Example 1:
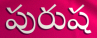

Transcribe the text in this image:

పురుష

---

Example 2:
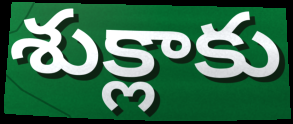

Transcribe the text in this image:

శుక్లాకు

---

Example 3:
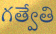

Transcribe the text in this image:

గత్వేతి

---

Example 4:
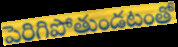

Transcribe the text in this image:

పెరిగిపోతుండటంతో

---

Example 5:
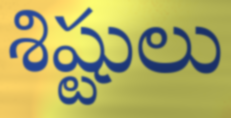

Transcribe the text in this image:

శిష్టులు